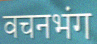
वचनभंग